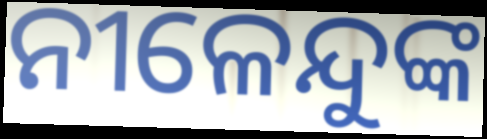
ନୀଳେନ୍ଦୁଙ୍କ